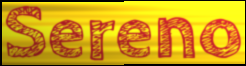
Sereno